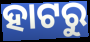
ହାଟରୁ